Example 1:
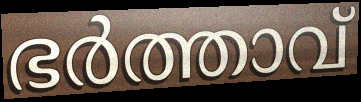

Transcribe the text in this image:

ഭർത്താവ്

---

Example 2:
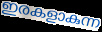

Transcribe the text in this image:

ഇരകളാകുന്ന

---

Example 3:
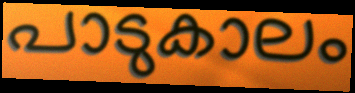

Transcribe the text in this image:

പാടുകാലം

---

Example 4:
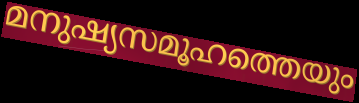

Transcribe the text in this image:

മനുഷ്യസമൂഹത്തെയും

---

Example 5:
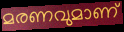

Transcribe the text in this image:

മരണവുമാണ്